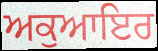
ਅਕੁਆਇਰ